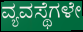
ವ್ಯವಸ್ಥೆಗಳೇ